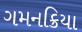
ગમનક્રિયા